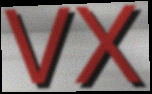
VX